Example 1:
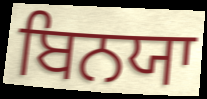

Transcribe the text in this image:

ਬਿਨਯਾ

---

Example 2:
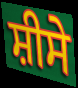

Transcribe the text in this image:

ਸ਼ੀਸੇ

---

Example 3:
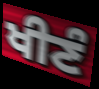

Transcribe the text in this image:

ਖੀਣੰ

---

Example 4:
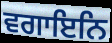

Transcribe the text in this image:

ਵਗਾਇਨਿ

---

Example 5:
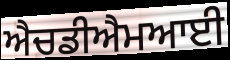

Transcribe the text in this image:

ਐਚਡੀਐਮਆਈ